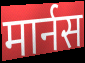
मार्नस